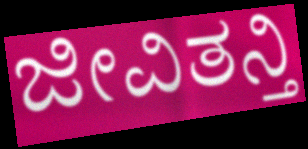
ಜೀವಿತನ್ತಿ